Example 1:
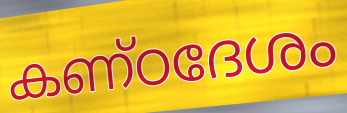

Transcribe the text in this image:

കണ്ഠദേശം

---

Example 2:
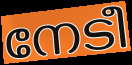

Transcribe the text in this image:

നേടീ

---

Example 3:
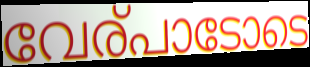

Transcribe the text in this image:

വേര്പാടോടെ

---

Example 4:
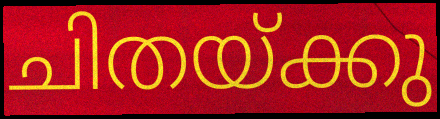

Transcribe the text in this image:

ചിതയ്ക്കു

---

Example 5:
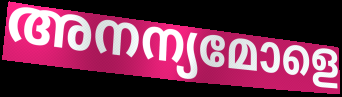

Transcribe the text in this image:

അനന്യമോളെ